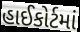
હાઈકોર્ટમાં